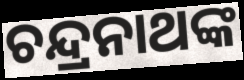
ଚନ୍ଦ୍ରନାଥଙ୍କ